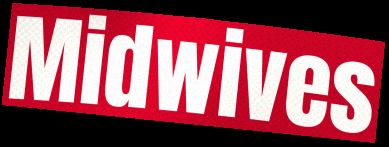
Midwives